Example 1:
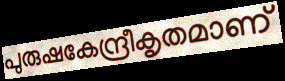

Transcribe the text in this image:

പുരുഷകേന്ദ്രീകൃതമാണ്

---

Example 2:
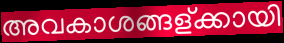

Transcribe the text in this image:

അവകാശങ്ങള്ക്കായി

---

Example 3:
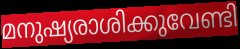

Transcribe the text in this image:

മനുഷ്യരാശിക്കുവേണ്ടി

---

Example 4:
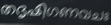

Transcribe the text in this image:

തദൃഷിഗണവചഃ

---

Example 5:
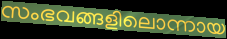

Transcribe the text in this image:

സംഭവങ്ങളിലൊന്നായ